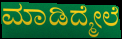
ಮಾಡಿದ್ಮೇಲೆ